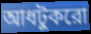
আধটুকরো